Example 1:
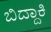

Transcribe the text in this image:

ಬಿದ್ದಾಕಿ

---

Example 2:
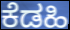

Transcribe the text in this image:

ಕೆಡಹಿ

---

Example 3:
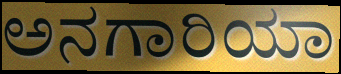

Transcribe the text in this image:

ಅನಗಾರಿಯಾ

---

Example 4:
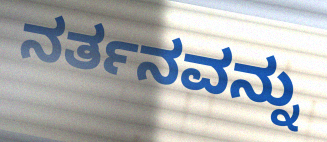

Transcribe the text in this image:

ನರ್ತನವನ್ನು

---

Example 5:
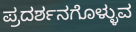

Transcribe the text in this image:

ಪ್ರದರ್ಶನಗೊಳ್ಳುವ